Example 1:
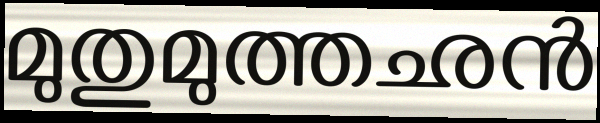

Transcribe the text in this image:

മുതുമുത്തഛൻ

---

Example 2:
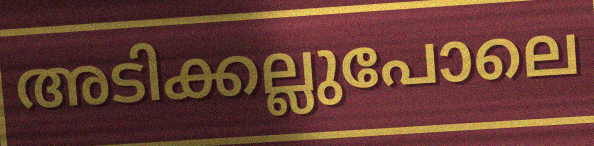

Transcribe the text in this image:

അടിക്കല്ലുപോലെ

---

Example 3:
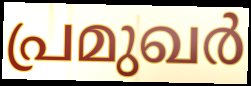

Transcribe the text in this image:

പ്രമുഖർ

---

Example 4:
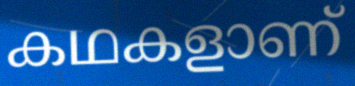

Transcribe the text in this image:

കഥകളാണ്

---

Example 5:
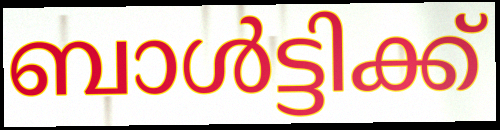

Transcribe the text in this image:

ബാൾട്ടിക്ക്